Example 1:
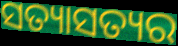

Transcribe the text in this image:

ସତ୍ୟାସତ୍ୟର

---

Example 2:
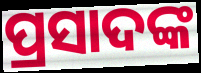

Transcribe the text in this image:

ପ୍ରସାଦଙ୍କ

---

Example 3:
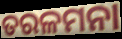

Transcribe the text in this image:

ତରଳମନା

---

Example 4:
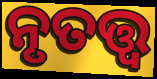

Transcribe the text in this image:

ନୃତତ୍ତ୍ୱ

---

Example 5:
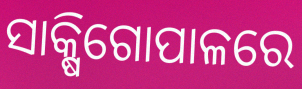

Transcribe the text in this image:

ସାକ୍ଷିଗୋପାଳରେ